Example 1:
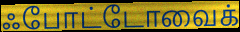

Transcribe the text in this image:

ஃபோட்டோவைக்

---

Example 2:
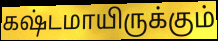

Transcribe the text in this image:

கஷ்டமாயிருக்கும்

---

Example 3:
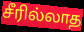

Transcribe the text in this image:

சீரில்லாத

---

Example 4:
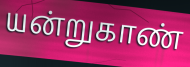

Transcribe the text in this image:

யன்றுகாண்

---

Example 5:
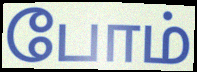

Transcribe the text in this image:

போம்